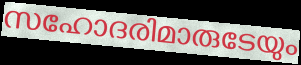
സഹോദരിമാരുടേയും